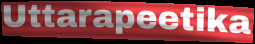
Uttarapeetika